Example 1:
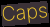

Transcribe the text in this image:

Caps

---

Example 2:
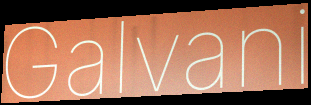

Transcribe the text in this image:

Galvani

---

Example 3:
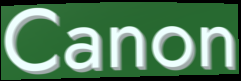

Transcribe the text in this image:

Canon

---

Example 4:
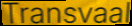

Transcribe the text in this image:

Transvaal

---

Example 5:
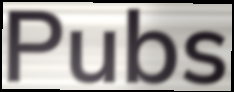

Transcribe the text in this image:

Pubs